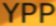
YPP